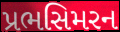
પ્રભસિમરન